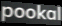
pookal